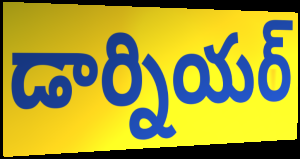
డార్నియర్